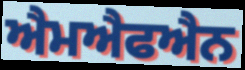
ਐਮਐਫਐਨ